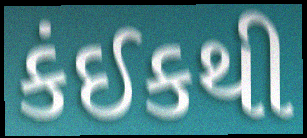
કંઈકથી